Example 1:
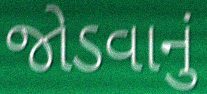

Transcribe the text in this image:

જોડવાનું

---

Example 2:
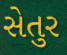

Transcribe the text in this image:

સેતુર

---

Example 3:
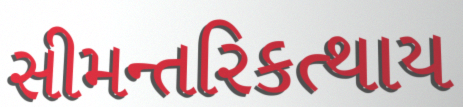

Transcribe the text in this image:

સીમન્તરિકત્થાય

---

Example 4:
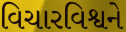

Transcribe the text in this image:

વિચારવિશ્વને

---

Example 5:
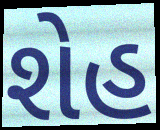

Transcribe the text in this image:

શેહ